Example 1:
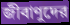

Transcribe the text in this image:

জীবাণুদের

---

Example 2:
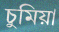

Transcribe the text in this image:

চুমিয়া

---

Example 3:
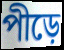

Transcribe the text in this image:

পীড়ে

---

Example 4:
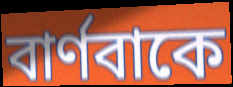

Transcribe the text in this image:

বার্ণবাকে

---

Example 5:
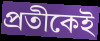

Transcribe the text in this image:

প্রতীকেই